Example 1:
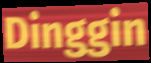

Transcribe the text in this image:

Dinggin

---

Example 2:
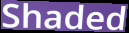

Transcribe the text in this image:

Shaded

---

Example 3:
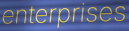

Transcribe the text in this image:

enterprises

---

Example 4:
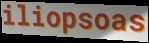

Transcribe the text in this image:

iliopsoas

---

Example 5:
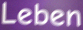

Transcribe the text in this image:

Leben